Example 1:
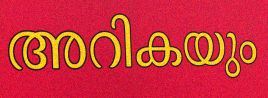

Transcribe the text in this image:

അറികയും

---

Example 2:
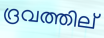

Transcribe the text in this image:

ദ്രവത്തില്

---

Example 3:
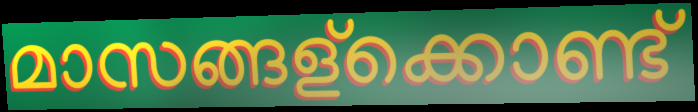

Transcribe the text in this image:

മാസങ്ങള്ക്കൊണ്ട്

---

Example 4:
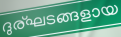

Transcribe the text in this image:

ദുര്ഘടങ്ങളായ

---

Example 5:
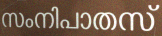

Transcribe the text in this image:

സംനിപാതസ്